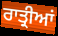
ਰਾਤ੍ਰੀਆਂ